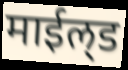
माईल्ड